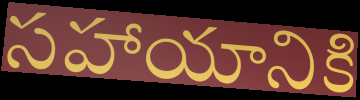
సహాయానికి